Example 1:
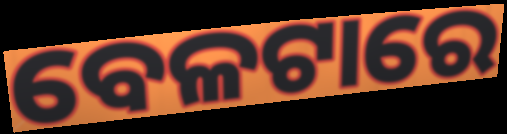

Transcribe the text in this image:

ବେଳଟାରେ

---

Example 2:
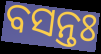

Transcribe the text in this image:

ବସନ୍ତଃ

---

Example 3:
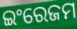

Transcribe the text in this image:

ଇଂରେଜମ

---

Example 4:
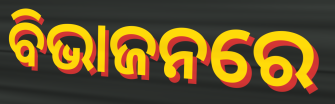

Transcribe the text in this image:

ବିଭାଜନରେ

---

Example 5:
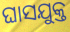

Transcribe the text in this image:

ଘାସଯୁକ୍ତ